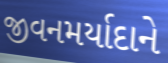
જીવનમર્યાદાને